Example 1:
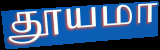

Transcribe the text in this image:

தூயமா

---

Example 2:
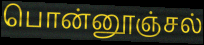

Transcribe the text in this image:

பொன்னூஞ்சல்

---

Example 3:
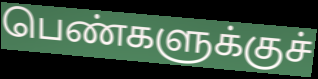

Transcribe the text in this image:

பெண்களுக்குச்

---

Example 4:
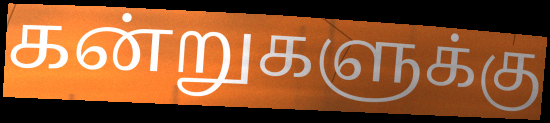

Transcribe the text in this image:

கன்றுகளுக்கு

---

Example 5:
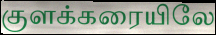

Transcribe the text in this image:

குளக்கரையிலே